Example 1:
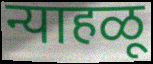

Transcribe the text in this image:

न्याहळू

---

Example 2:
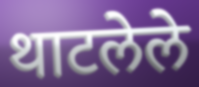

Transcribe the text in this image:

थाटलेले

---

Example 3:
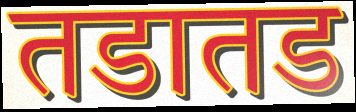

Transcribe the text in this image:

तडातड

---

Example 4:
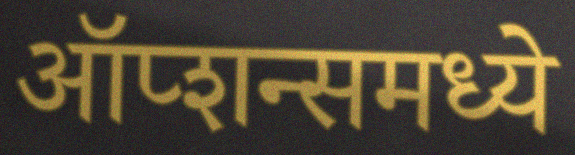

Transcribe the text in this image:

ऑप्शन्समध्ये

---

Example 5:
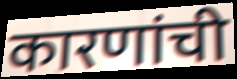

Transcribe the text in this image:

कारणांची